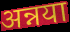
अन्नया